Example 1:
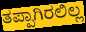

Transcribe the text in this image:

ತಪ್ಪಾಗಿರಲಿಲ್ಲ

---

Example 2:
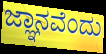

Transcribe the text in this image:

ಜ್ಞಾನವೆಂದು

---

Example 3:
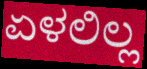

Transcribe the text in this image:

ಏಳಲಿಲ್ಲ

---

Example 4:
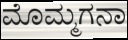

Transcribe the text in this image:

ಮೊಮ್ಮಗನಾ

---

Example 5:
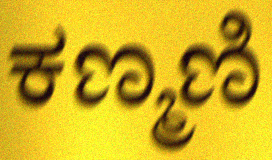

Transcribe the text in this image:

ಕಣ್ಮಣಿ